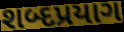
શબ્દપ્રયાગ